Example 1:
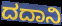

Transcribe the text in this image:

ದದಾನಿ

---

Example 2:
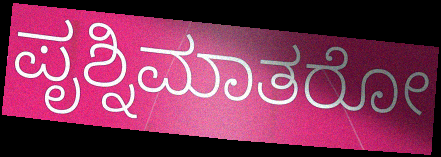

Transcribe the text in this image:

ಪೃಶ್ನಿಮಾತರೋ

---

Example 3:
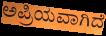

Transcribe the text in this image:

ಅಪ್ರಿಯವಾಗಿದೆ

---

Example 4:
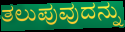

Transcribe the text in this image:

ತಲುಪುವುದನ್ನು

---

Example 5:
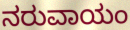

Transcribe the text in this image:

ನರುವಾಯಂ